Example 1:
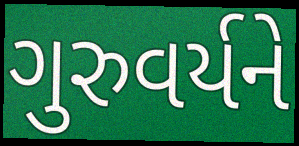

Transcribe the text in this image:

ગુરુવર્યને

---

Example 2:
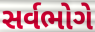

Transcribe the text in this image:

સર્વભોગે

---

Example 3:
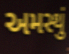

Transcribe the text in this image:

અમસ્થું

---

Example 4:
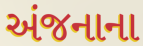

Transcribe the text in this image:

અંજનાના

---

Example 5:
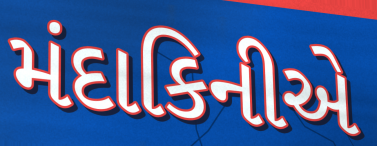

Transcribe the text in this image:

મંદાકિનીએ